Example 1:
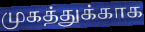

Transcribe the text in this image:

முகத்துக்காக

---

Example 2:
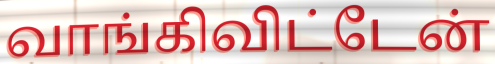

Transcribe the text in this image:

வாங்கிவிட்டேன்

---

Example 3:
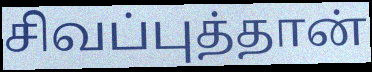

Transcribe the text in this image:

சிவப்புத்தான்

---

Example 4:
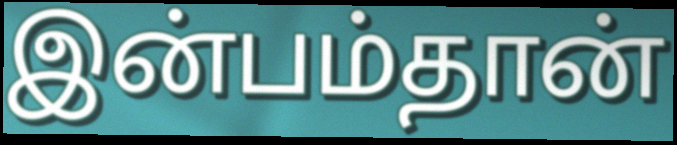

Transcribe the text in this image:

இன்பம்தான்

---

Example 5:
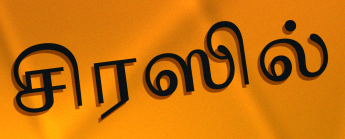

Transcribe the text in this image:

சிரஸில்